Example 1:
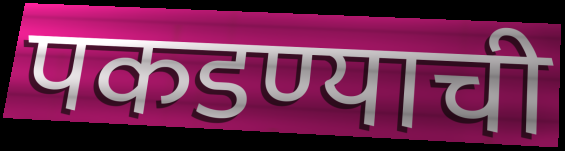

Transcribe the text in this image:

पकडण्याची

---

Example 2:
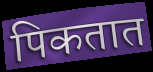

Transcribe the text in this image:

पिकतात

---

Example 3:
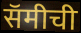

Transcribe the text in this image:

सॅमीची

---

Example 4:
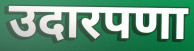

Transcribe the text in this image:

उदारपणा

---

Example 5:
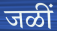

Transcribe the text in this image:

जळीं